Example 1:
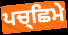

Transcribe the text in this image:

ਪਚ੍ਛਿਮੇ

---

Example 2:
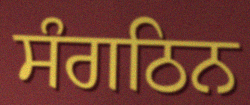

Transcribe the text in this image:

ਸੰਗਠਿਨ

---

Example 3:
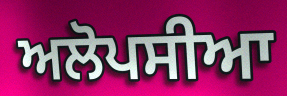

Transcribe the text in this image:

ਅਲੋਪਸੀਆ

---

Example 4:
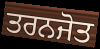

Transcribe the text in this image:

ਤਰਨਜੋਤ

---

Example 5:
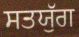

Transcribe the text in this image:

ਸਤਯੁੱਗ